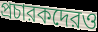
প্রচারকদেরও